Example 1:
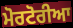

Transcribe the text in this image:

ਮੋਰਟੋਰੀਆ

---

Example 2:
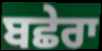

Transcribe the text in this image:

ਬਛੇਰਾ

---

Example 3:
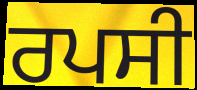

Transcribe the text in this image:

ਰਪਸੀ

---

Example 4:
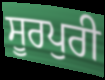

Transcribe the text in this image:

ਸੂਰਪੁਰੀ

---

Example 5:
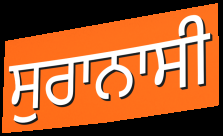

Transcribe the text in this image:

ਸੁਰਾਨਾਸੀ